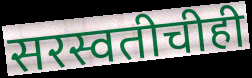
सरस्वतीचीही